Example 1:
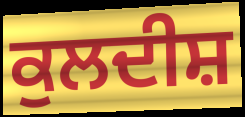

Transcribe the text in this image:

ਕੁਲਦੀਸ਼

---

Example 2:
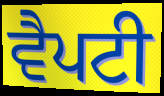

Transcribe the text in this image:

ਵੈਪਟੀ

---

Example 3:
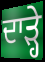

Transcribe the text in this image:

ਦਾੜ੍ਹੇ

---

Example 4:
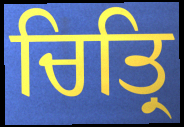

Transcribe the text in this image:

ਚਿਤ੍ਰਿ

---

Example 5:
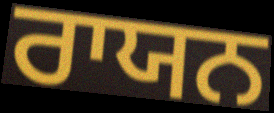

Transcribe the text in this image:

ਰਾਯਨ